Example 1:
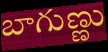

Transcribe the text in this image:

బాగుణ్ణు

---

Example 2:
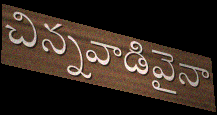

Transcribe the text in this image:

చిన్నవాడివైనా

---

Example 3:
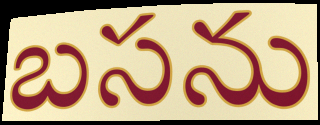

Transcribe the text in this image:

బసను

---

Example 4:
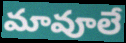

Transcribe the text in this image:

మావూలే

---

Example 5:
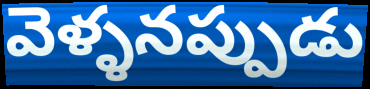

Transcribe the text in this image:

వెళ్ళనప్పుడు